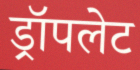
ड्रॉपलेट